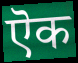
ऎक